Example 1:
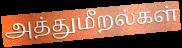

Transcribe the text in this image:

அத்துமீறல்கள்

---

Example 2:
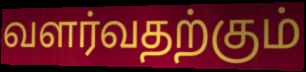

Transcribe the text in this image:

வளர்வதற்கும்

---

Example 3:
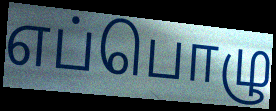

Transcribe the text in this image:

எப்பொழு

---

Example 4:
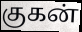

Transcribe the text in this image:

குகன்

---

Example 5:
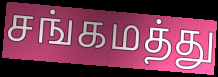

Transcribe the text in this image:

சங்கமத்து